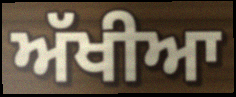
ਅੱਖੀਆ